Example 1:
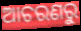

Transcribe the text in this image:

ଆଚରଣରୁ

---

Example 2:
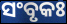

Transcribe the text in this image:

ସଂବୃକଃ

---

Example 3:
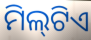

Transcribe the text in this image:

ମିଲ୍‌ଟିଏ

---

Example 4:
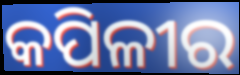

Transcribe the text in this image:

କପିଳୀର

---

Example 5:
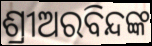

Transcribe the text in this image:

ଶ୍ରୀଅରବିନ୍ଦଙ୍କ